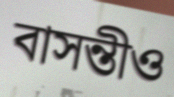
বাসন্তীও